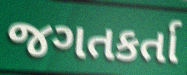
જગતકર્તા